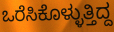
ಒರೆಸಿಕೊಳ್ಳುತ್ತಿದ್ದ